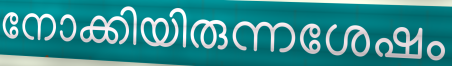
നോക്കിയിരുന്നശേഷം